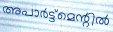
അപാർട്ട്മെന്റിൽ